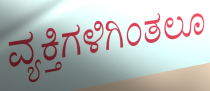
ವ್ಯಕ್ತಿಗಳಿಗಿಂತಲೂ